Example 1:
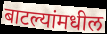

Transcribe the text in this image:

बाटल्यांमधील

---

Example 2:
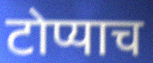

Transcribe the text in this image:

टोप्याच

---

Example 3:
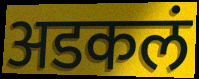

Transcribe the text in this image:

अडकलं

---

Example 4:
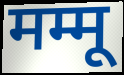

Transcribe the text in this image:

मम्मू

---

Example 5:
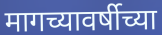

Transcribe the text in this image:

मागच्यावर्षीच्या